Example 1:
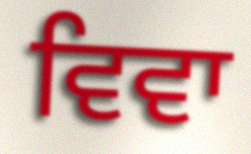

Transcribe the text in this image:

ਵਿਵਾ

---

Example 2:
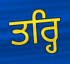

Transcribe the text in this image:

ਤਰ੍ਹਿ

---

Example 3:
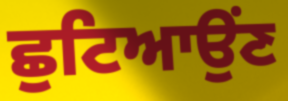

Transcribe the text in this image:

ਛੁਟਿਆਉਂਣ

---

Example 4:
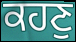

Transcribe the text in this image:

ਕਹਣੁ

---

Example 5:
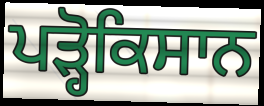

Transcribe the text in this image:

ਪੜ੍ਹੋਕਿਸਾਨ